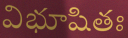
విభూషితః